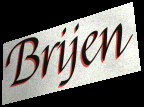
Brijen